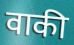
वाकी